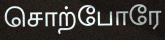
சொற்போரே